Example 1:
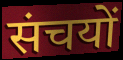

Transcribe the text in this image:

संचयों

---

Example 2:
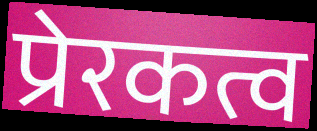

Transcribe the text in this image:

प्रेरकत्व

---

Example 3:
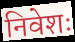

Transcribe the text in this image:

निवेशः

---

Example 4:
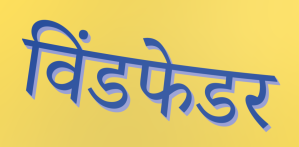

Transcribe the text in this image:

विंडफेडर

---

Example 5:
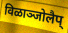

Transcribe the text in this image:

विळाञ्जोलैप्